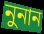
নুনান